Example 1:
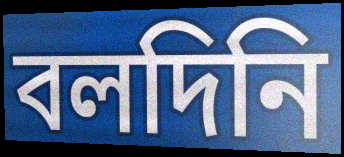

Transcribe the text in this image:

বলদিনি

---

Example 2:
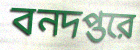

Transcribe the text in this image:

বনদপ্তরে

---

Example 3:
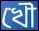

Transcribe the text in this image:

খৌ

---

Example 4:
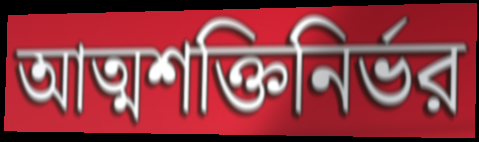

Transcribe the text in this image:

আত্মশক্তিনির্ভর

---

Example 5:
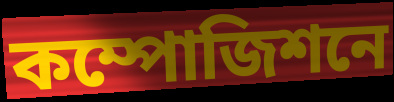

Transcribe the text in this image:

কম্পোজিশনে